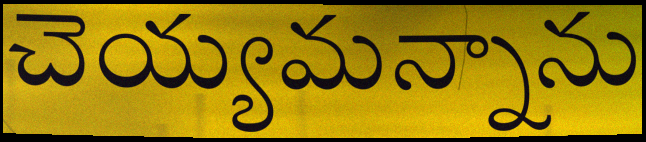
చెయ్యమన్నాను